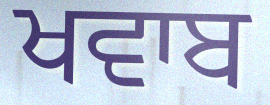
ਖਵਾਬ